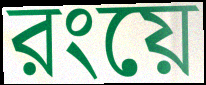
রংয়ে